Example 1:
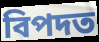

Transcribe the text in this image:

বিপদত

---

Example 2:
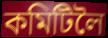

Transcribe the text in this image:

কমিটিলৈ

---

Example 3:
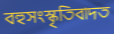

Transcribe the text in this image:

বহুসংস্কৃতিবাদত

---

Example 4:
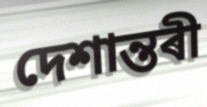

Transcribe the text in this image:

দেশান্তৰী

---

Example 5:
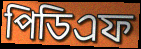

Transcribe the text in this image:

পিডিএফ